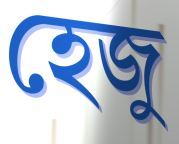
হেজু